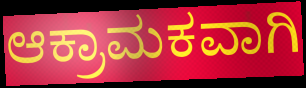
ಆಕ್ರಾಮಕವಾಗಿ